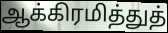
ஆக்கிரமித்துத்